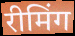
रीमिंग